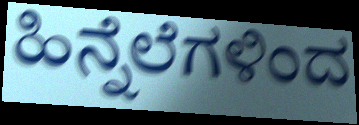
ಹಿನ್ನೆಲೆಗಳಿಂದ